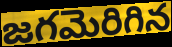
జగమెరిగిన